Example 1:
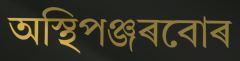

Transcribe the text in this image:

অস্থিপঞ্জৰবোৰ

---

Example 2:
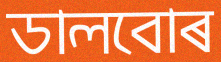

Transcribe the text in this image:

ডালবোৰ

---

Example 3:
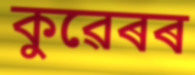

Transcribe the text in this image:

কুৱেৰৰ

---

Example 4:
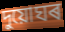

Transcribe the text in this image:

দুয়োঘৰ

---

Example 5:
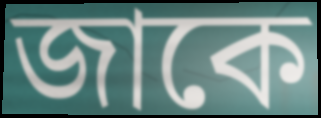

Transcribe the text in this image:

জাকে